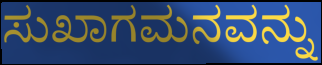
ಸುಖಾಗಮನವನ್ನು